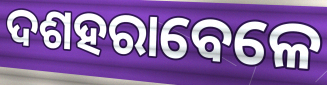
ଦଶହରାବେଳେ